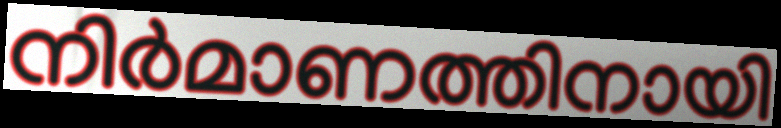
നിർമാണത്തിനായി